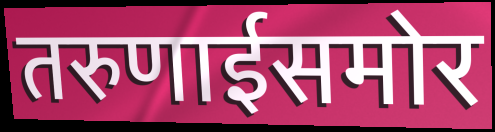
तरुणाईसमोर